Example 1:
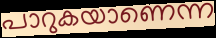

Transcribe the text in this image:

പാറുകയാണെന്ന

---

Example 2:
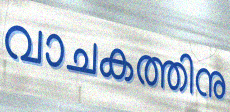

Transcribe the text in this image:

വാചകത്തിനു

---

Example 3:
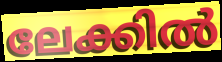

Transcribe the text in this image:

ലേക്കിൽ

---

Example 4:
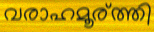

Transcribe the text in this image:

വരാഹമൂര്ത്തി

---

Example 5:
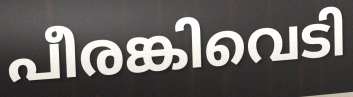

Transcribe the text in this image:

പീരങ്കിവെടി